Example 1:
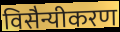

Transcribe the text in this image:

विसैन्यीकरण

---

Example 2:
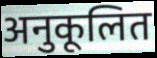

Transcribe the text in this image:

अनुकूलित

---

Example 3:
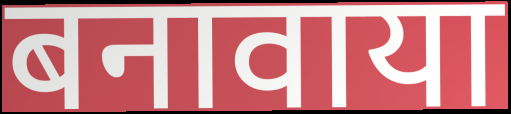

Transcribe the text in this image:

बनावाया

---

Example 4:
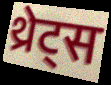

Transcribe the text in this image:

थ्रेट्स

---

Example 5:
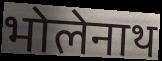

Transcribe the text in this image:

भोलेनाथ